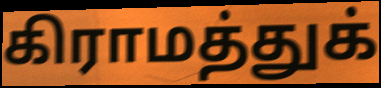
கிராமத்துக்